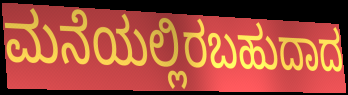
ಮನೆಯಲ್ಲಿರಬಹುದಾದ